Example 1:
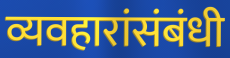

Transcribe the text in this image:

व्यवहारांसंबंधी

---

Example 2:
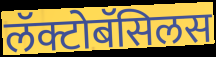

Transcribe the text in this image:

लॅक्टोबॅसिलस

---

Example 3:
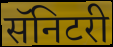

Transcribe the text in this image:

सॅनिटरी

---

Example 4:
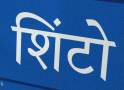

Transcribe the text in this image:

शिंटो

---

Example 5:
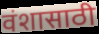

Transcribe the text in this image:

वंशासाठी